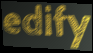
edify